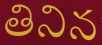
తినిన